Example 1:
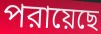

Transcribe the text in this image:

পরায়েছে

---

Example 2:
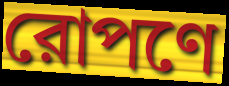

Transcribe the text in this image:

রোপণে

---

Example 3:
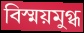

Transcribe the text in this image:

বিস্ময়মুগ্ধ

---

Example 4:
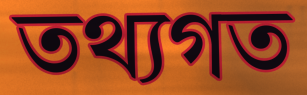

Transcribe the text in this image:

তথ্যগত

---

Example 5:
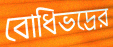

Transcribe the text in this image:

বোধিভদ্রের